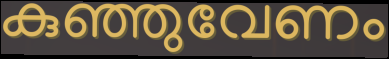
കുഞ്ഞുവേണം